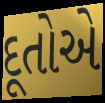
દૂતોએ